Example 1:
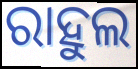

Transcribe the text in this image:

ରାହୁଲ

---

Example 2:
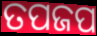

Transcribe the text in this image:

ତପଜପ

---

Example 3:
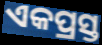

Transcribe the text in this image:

ଏକପ୍ରସ୍ତ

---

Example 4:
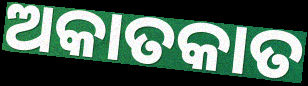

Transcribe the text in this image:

ଅକାତକାତ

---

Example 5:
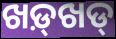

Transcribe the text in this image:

ଖଡ଼୍‌ଖଡ୍